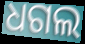
ଧଗଲ